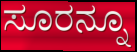
ಸೂರನ್ನೂ